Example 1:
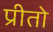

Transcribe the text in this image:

प्रीतो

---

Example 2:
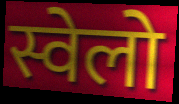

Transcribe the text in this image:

स्वेलो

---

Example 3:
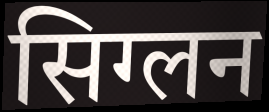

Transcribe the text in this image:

सिग्‍लन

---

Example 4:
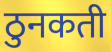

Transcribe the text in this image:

ठुनकती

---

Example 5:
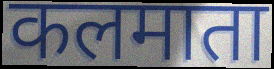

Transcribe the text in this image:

कलमाता